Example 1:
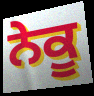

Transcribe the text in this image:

ਨੇਕੂ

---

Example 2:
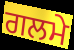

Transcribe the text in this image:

ਗਲਮੇ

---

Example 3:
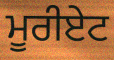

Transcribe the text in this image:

ਮੂਰੀਏਟ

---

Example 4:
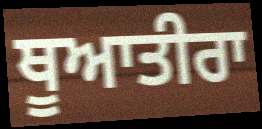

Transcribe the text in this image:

ਥੂਆਤੀਰਾ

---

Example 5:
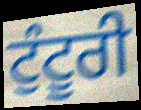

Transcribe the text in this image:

ਟੁੰਟੂਰੀ